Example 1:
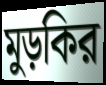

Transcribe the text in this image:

মুড়কির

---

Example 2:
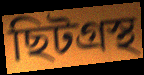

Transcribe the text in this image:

ছিটগ্রস্থ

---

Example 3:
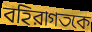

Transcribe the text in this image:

বহিরাগতকে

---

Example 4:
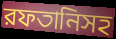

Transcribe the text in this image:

রফতানিসহ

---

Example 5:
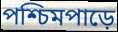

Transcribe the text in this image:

পশ্চিমপাড়ে